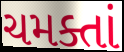
ચમક્તાં